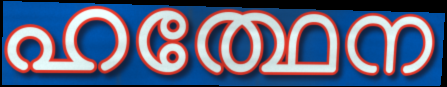
ഹത്ഥേന